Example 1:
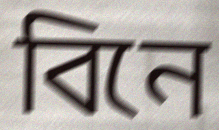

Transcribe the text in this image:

বিনে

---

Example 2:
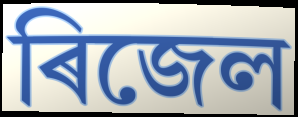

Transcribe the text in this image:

ৰিজেল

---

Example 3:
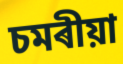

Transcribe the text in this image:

চমৰীয়া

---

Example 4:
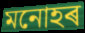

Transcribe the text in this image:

মনোহৰ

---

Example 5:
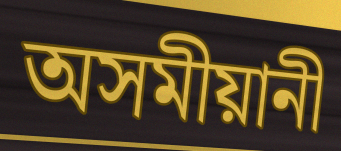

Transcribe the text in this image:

অসমীয়ানী